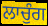
ਲਾਚੁੰਗ